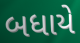
બધાયે